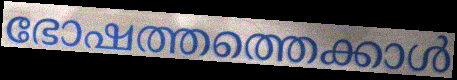
ഭോഷത്തത്തെക്കാൾ